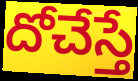
దోచేస్తే